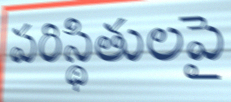
పరిస్థితులపై